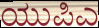
ಯುಪಿಎ